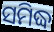
ସମିଦ୍ଧ